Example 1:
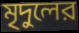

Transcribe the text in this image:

মৃদুলের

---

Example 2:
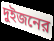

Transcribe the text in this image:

দুইজনের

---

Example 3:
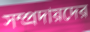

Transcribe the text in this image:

সম্প্রদায়দের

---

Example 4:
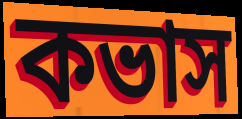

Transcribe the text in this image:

কভাস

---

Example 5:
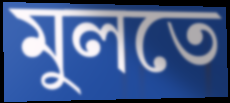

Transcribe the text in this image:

মুলতে